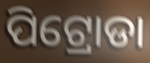
ପିଟ୍ରୋଡା